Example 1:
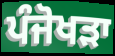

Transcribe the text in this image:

ਪੰਜੋਖੜਾ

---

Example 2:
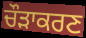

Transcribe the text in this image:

ਚੌੜਾਕਰਣ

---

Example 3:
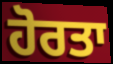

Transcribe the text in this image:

ਹੋਰਤਾ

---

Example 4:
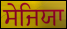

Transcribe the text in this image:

ਸੇਜਿਯਾ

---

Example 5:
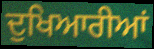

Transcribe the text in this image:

ਦੁਖਿਆਰੀਆਂ